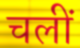
चलीं